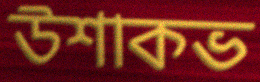
উশাকভ